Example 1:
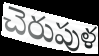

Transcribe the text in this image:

చెరుపుళ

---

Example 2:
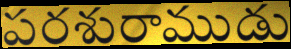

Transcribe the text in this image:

పరశురాముడు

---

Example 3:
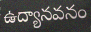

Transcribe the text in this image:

ఉద్యానవనం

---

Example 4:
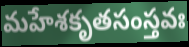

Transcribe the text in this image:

మహేశకృతసంస్తవః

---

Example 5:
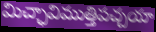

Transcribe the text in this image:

మిచ్ఛావిముత్తిపచ్చయా